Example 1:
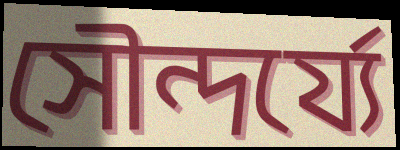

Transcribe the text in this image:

সৌন্দর্য্যে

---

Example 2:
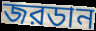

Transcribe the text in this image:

জরডান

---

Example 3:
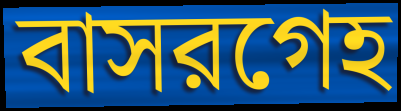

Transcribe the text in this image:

বাসরগেহ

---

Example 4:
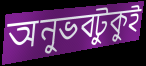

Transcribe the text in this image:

অনুভবটুকুই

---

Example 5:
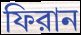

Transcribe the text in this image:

ফিরান